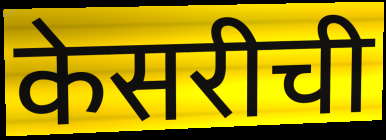
केसरीची